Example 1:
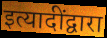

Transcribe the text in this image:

इत्यादींद्वारा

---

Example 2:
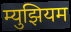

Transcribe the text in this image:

म्युझियम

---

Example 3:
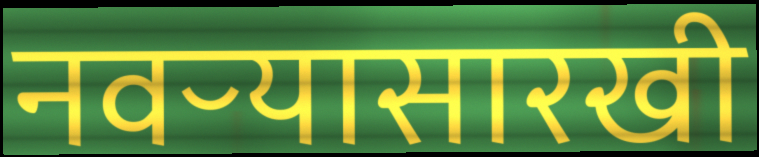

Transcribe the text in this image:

नवऱ्यासारखी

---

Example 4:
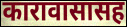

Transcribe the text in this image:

कारावासासह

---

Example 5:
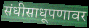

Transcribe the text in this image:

संधीसाधूपणावर